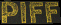
PIFF